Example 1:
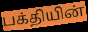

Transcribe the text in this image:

பக்தியின்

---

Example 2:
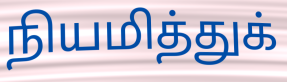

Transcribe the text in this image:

நியமித்துக்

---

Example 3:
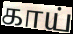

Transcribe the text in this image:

காய்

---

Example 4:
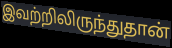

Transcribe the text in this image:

இவற்றிலிருந்துதான்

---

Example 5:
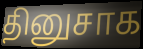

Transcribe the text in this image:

தினுசாக